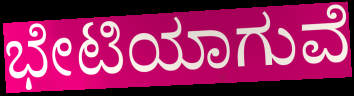
ಭೇಟಿಯಾಗುವೆ